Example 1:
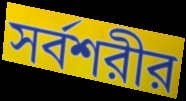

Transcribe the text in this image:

সর্বশরীর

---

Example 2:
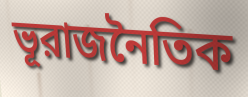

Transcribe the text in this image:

ভূরাজনৈতিক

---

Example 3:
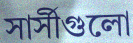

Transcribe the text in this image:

সার্সীগুলো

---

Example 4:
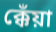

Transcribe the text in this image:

ক্কেঁয়া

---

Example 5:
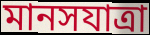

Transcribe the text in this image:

মানসযাত্রা